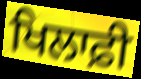
ਖਿਲਾਫ਼ੀ